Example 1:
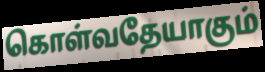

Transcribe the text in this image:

கொள்வதேயாகும்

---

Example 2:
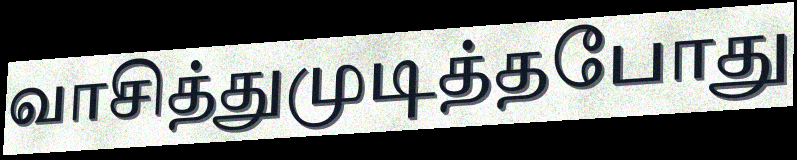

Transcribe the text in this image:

வாசித்துமுடித்தபோது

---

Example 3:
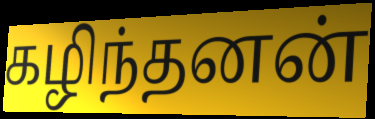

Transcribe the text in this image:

கழிந்தனன்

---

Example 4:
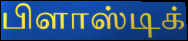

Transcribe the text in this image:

பிளாஸ்டிக்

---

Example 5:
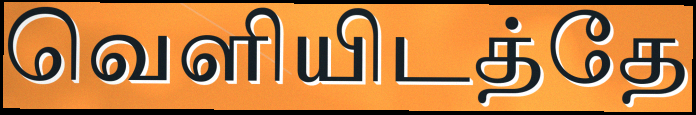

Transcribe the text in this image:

வெளியிடத்தே